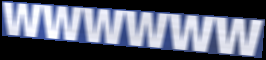
wwwwww